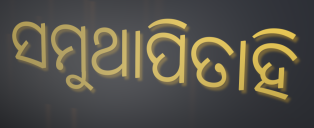
ସମୁଥାପିତାହି